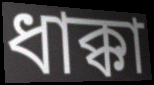
ধাক্কা